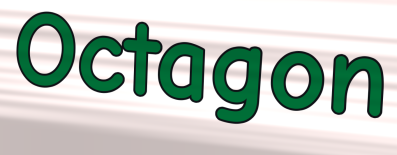
Octagon